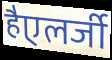
हैएलर्जी